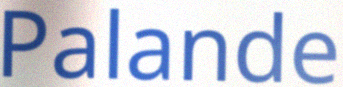
Palande